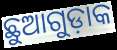
ଛୁଆଗୁଡ଼ାକ